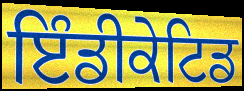
ਇੰਡੀਕੇਟਿਡ